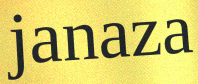
janaza